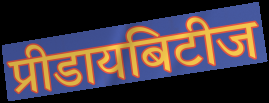
प्रीडायबिटीज